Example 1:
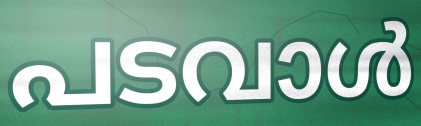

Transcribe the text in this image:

പടവാൾ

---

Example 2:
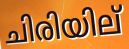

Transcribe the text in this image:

ചിരിയില്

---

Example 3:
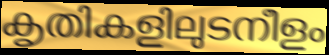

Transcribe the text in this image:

കൃതികളിലുടനീളം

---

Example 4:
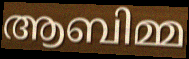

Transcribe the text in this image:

ആബിമ്മ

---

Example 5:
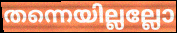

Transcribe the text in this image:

തന്നെയില്ലല്ലോ